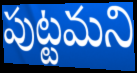
పుట్టమని